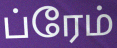
ப்ரேம்